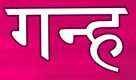
गन्ह